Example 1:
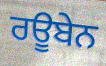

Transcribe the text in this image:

ਰਊਬੇਨ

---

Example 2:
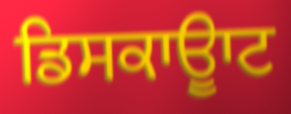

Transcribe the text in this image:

ਡਿਸਕਾਊਾਟ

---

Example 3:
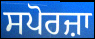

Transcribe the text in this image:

ਸਪੋਰਜ਼ਾ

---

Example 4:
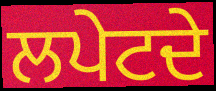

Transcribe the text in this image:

ਲਪੇਟਦੇ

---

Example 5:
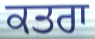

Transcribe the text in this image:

ਕਤਰਾ